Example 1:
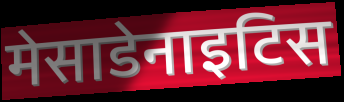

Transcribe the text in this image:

मेसाडेनाइटिस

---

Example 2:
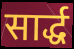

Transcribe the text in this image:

सार्द्ध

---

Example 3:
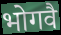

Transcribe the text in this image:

भोगवै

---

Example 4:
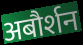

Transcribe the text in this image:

अबौर्शन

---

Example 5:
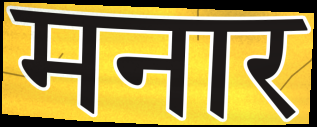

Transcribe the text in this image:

मनार